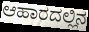
ಆಹಾರದಲ್ಲಿನ